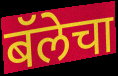
बॅलेचा